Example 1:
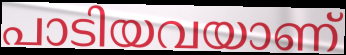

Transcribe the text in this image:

പാടിയവയാണ്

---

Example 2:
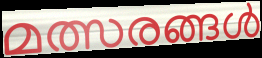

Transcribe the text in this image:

മത്സരങ്ങൾ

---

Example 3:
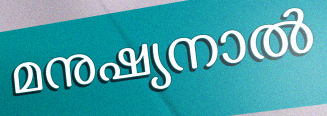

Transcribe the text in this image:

മനുഷ്യനാൽ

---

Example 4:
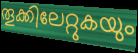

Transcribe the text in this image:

തൂക്കിലേറ്റുകയും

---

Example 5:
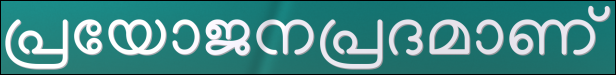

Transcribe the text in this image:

പ്രയോജനപ്രദമാണ്